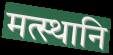
मत्स्थानि